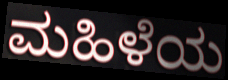
ಮಹಿಳೆಯ